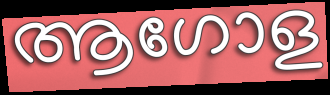
ആഗോള